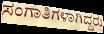
ಸಂಗಾತಿಗಳಾಗಿದ್ದರು